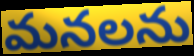
మనలను